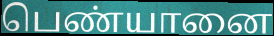
பெண்யானை